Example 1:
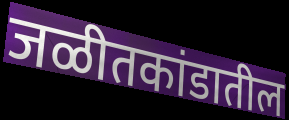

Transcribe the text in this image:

जळीतकांडातील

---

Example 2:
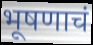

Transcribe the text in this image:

भूषणाचं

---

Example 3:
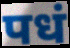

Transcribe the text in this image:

पधं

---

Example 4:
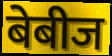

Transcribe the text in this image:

बेबीज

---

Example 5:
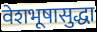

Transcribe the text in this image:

वेशभूषासुद्धा